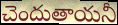
చెందుతాయనీ